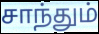
சாந்தும்